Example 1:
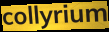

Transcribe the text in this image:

collyrium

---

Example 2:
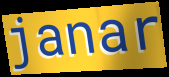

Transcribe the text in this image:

janar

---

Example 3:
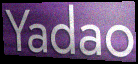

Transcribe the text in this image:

Yadao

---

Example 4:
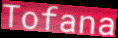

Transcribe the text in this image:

Tofana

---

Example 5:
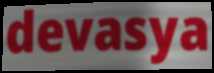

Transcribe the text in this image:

devasya